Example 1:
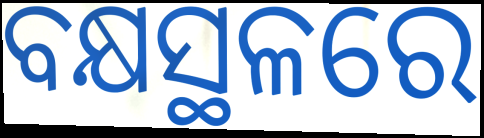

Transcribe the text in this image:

ବକ୍ଷସ୍ଥଳରେ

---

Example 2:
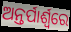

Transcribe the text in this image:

ଅନ୍ତର୍ପାର୍ଶ୍ୱରେ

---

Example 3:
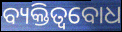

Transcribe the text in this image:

ବ୍ୟକ୍ତିତ୍ୱବୋଧ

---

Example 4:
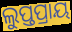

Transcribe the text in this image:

ଲୁପ୍ତପ୍ରାୟ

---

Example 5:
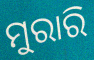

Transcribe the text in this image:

ମୁରାରି